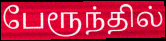
பேரூந்தில்